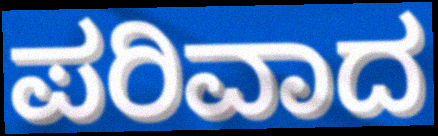
ಪರಿವಾದ